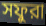
সফুরা